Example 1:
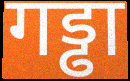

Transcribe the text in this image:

गड्ढा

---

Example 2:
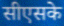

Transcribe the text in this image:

सीएसके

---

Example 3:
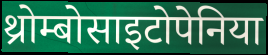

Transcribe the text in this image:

थ्रोम्बोसाइटोपेनिया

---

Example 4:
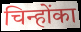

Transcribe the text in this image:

चिन्होंका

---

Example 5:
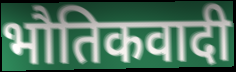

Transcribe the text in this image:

भौतिकवादी